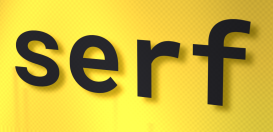
serf